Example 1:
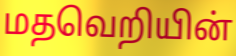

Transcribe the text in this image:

மதவெறியின்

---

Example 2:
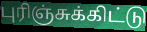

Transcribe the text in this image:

புரிஞ்சுக்கிட்டு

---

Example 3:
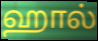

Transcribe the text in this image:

ஹால்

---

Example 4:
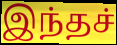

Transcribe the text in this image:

இந்தச்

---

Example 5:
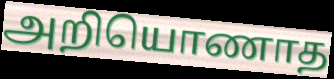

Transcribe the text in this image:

அறியொணாத